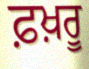
ਫ਼ਖ਼ਰੂ